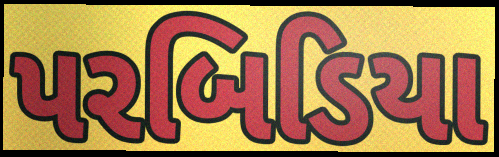
પરબિડિયા